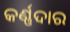
କର୍ଣ୍ଣଦାର